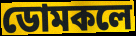
ডোমকলে